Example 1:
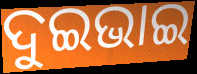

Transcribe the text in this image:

ଦୁଇଭାଇ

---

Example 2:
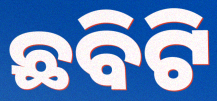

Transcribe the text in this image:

ଛବିଟି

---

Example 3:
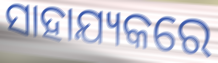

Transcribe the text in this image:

ସାହାଯ୍ୟକରେ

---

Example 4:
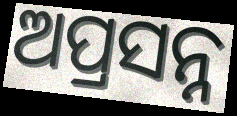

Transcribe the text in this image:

ଅପ୍ରସନ୍ନ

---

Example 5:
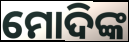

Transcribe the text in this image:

ମୋଦିଙ୍କ